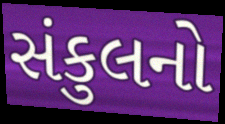
સંકુલનો